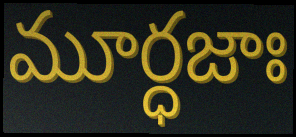
మూర్ధజాః